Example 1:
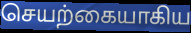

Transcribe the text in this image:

செயற்கையாகிய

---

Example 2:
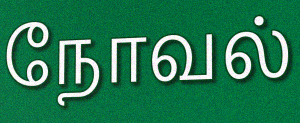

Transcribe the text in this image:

நோவல்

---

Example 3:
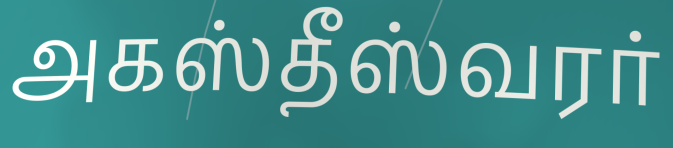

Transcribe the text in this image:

அகஸ்தீஸ்வரர்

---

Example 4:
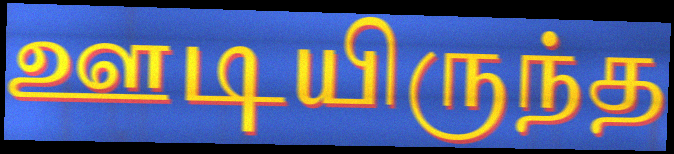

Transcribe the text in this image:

ஊடியிருந்த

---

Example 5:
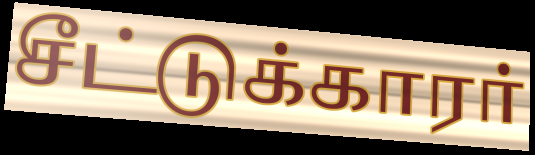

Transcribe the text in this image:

சீட்டுக்காரர்